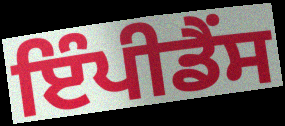
ਇੰਪੀਡੈਂਸ